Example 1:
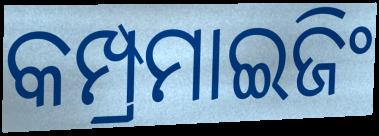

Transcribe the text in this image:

କମ୍ପ୍ରମାଇଜିଂ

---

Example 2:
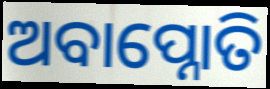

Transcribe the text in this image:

ଅବାପ୍ନୋତି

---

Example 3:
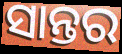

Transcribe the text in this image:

ସାନ୍ତର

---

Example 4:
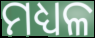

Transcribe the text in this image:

ମଧ୍ୟଳ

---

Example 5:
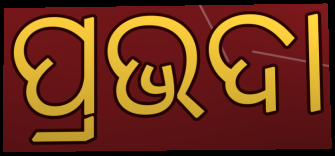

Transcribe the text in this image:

ପ୍ରଭଦା